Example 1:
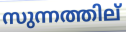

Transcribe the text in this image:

സുന്നത്തില്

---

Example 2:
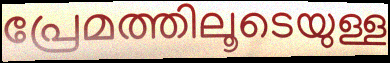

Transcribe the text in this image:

പ്രേമത്തിലൂടെയുള്ള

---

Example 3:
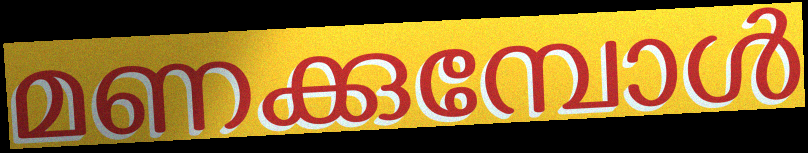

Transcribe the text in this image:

മണക്കുമ്പോൾ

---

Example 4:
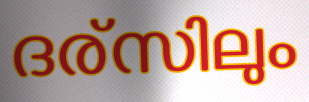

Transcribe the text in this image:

ദര്സിലും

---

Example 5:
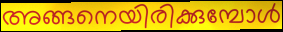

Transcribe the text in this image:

അങ്ങനെയിരിക്കുമ്പോൾ